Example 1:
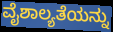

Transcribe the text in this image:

ವೈಶಾಲ್ಯತೆಯನ್ನು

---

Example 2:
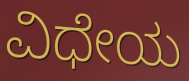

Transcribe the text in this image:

ವಿಧೇಯ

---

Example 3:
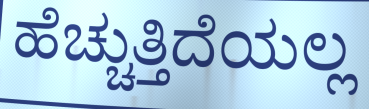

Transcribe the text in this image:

ಹೆಚ್ಚುತ್ತಿದೆಯಲ್ಲ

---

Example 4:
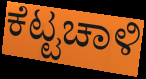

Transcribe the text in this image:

ಕೆಟ್ಟಚಾಳಿ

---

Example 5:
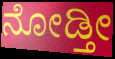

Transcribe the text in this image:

ನೋಡ್ತೀ